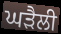
ਘੜੈਲੀ